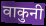
वाकुनी